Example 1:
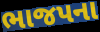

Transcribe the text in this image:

ભાજપના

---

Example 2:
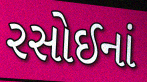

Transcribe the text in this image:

રસોઈનાં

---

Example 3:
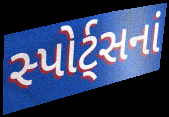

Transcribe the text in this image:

સ્પોર્ટ્સનાં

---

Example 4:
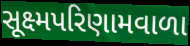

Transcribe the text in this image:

સૂક્ષ્મપરિણામવાળા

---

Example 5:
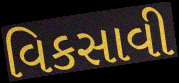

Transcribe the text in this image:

વિકસાવી